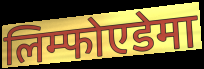
लिम्फोएडेमा